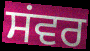
ਸਂਵਰ